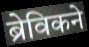
ब्रेविकने